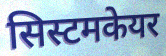
सिस्टमकेयर